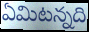
ఏమిటన్నది